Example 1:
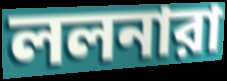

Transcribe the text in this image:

ললনারা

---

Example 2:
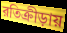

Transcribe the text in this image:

রতিক্রীড়ায়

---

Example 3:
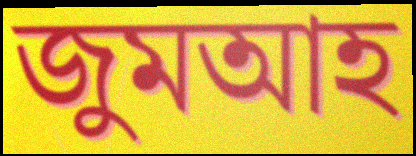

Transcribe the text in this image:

জুমআহ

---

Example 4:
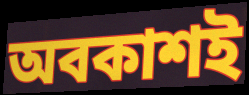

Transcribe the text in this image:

অবকাশই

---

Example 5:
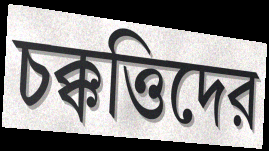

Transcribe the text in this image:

চক্কত্তিদের